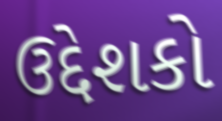
ઉદ્દેશકો